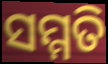
ସମ୍ମତି